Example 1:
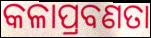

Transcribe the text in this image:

କଳାପ୍ରବଣତା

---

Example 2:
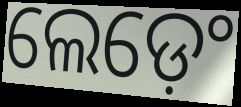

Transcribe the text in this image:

ଲେଡ଼େଂ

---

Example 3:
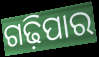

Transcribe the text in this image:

ଗଢ଼ିପାର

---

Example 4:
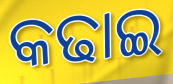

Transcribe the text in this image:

କଢାଇ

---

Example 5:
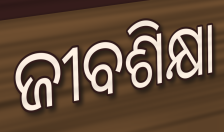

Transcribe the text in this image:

ଜୀବଶିକ୍ଷା